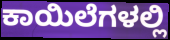
ಕಾಯಿಲೆಗಳಲ್ಲಿ